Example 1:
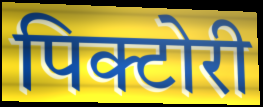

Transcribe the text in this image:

पिक्टोरी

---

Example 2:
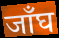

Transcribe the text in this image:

जाँघ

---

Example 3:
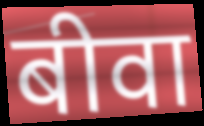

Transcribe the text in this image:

बीवा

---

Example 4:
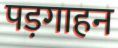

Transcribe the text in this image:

पड़गाहन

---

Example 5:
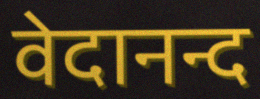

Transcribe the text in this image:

वेदानन्द